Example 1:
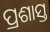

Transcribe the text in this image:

ପ୍ରଶାସ୍ତ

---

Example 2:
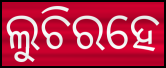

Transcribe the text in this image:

ଲୁଚିରହେ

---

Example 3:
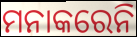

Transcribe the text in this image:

ମନାକରେନି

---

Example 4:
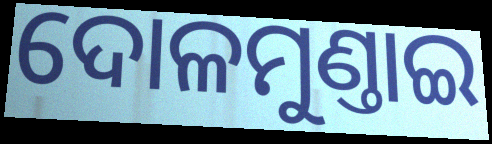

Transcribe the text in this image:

ଦୋଳମୁଣ୍ତାଇ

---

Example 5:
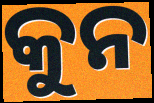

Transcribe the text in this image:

କୁନ